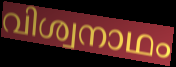
വിശ്വനാഥം